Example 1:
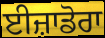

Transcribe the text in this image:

ਈਜ਼ਾਡੋਰਾ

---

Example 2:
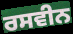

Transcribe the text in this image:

ਰਸਵੀਨ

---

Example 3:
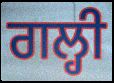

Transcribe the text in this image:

ਗਲ੍ਹੀ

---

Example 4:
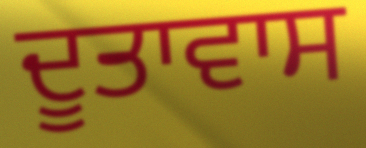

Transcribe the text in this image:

ਦੂਤਾਵਾਸ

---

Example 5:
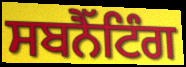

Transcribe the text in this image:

ਸਬਨੈੱਟਿੰਗ